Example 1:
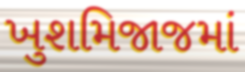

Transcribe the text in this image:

ખુશમિજાજમાં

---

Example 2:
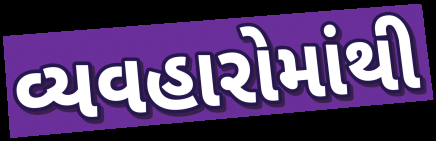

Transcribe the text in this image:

વ્યવહારોમાંથી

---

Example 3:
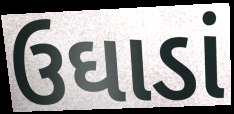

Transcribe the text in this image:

ઉઘાડાં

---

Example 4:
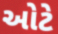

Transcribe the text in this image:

ઓટે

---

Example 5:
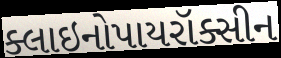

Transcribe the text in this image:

ક્લાઇનોપાયરૉક્સીન